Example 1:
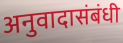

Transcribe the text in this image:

अनुवादासंबंधी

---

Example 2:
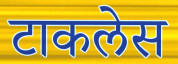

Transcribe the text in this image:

टाकलेस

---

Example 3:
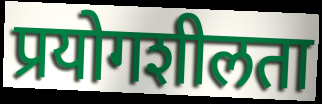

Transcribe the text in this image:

प्रयोगशीलता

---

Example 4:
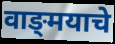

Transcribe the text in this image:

वाङ्‍मयाचे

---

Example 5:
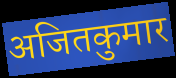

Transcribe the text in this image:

अजितकुमार